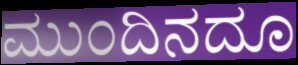
ಮುಂದಿನದೂ